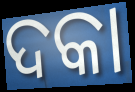
ଦକା